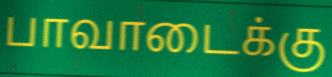
பாவாடைக்கு